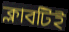
ক্লাবটিই